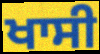
ਖਾਸੀ